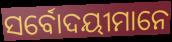
ସର୍ବୋଦୟୀମାନେ